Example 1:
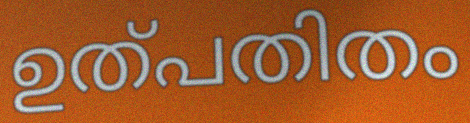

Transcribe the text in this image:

ഉത്പതിതം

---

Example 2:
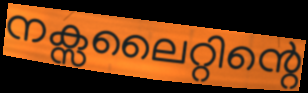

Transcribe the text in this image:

നക്സലൈറ്റിന്റെ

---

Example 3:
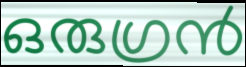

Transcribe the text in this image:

ഒരുഗ്രൻ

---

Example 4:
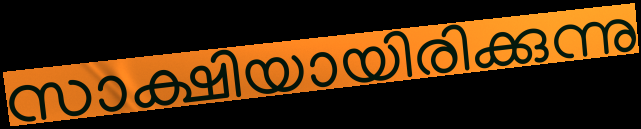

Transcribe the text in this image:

സാക്ഷിയായിരിക്കുന്നു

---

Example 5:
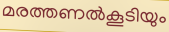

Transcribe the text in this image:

മരത്തണൽകൂടിയും